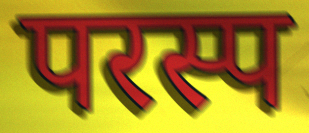
परस्प